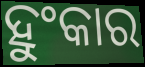
ହୁଂକାର